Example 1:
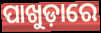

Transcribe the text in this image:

ପାଖୁଡ଼ାରେ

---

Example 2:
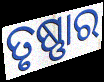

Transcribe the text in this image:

ତୃଷ୍ଣାର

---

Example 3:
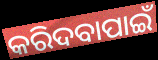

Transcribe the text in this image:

କରିଦବାପାଇଁ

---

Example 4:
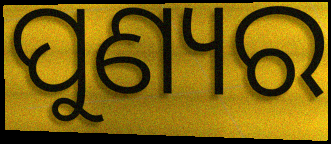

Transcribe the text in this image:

ପୁଣ୍ୟର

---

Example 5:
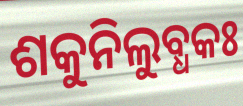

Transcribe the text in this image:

ଶକୁନିଲୁବ୍ଧକଃ